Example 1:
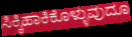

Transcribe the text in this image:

ಸಿಕ್ಕಿಹಾಕಿಕೊಳ್ಳುವುದೂ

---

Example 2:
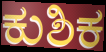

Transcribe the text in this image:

ಕುಶಿಕ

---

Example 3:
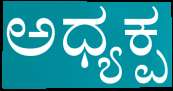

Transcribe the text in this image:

ಅಧ್ಯಕ್ಪ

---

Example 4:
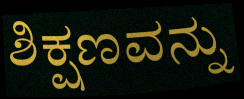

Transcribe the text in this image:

ಶಿಕ್ಷಣವನ್ನು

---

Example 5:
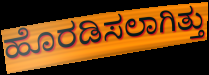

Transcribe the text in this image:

ಹೊರಡಿಸಲಾಗಿತ್ತು